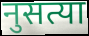
नुसत्या